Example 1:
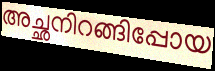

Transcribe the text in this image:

അച്ഛനിറങ്ങിപ്പോയ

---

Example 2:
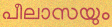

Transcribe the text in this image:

പീലാസയും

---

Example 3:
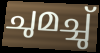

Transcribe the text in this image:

ചുമച്ചു്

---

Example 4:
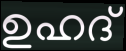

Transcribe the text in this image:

ഉഹദ്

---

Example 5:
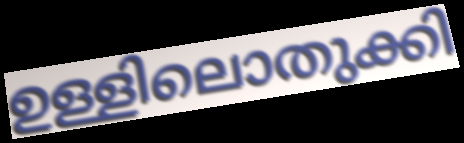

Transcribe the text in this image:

ഉള്ളിലൊതുക്കി